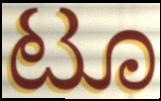
ಟೂ